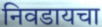
निवडायचा